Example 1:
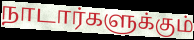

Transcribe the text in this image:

நாடார்களுக்கும்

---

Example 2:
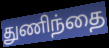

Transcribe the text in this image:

துணிந்தை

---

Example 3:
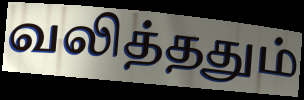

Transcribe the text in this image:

வலித்ததும்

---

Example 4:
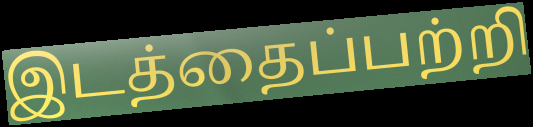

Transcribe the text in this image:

இடத்தைப்பற்றி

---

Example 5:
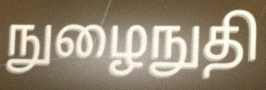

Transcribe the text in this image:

நுழைநுதி